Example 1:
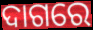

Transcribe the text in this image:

ଦାଗରେ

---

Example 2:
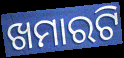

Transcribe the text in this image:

ଖମାରଟି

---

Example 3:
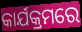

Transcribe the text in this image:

କାର୍ଯକ୍ରମରେ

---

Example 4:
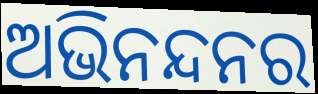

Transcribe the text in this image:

ଅଭିନନ୍ଦନର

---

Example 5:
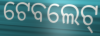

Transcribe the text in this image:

ଟେବଲେଟ୍